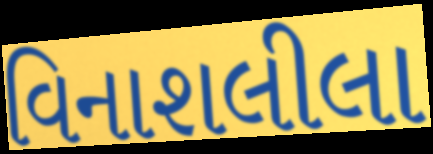
વિનાશલીલા